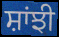
ਸ਼ਾਂਝੀ